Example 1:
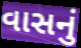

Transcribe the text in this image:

વાસનું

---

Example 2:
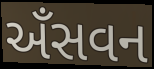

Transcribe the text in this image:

અઁસવન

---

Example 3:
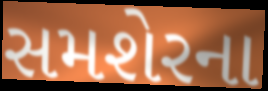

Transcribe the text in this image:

સમશેરના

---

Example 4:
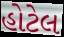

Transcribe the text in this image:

હોટેલ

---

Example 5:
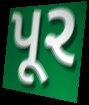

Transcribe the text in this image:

પૂર